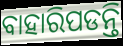
ବାହାରିପଡନ୍ତି